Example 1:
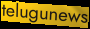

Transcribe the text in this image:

telugunews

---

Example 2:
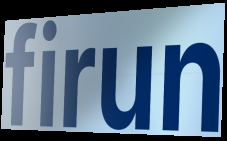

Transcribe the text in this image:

firun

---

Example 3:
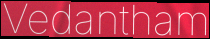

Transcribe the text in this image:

Vedantham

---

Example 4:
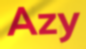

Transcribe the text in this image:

Azy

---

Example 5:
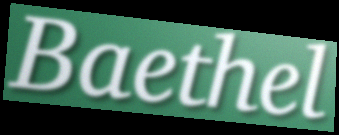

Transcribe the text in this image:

Baethel